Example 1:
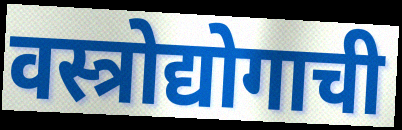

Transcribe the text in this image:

वस्त्रोद्योगाची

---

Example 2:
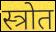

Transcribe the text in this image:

स्त्रोत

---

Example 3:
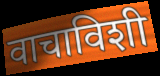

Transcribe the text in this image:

वाचाविशी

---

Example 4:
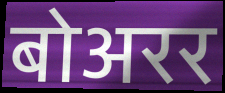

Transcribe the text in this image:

बोअरर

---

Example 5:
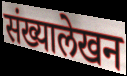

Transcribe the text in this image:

संख्यालेखन